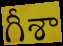
గీశా